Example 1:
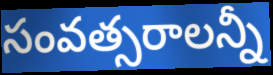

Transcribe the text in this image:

సంవత్సరాలన్నీ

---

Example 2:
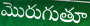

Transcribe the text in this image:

మొరుగుతూ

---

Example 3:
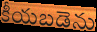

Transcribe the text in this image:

కీయబడెను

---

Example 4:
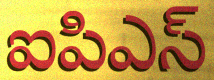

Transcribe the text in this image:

ఐపిఎస్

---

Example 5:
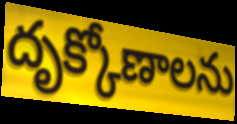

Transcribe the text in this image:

దృక్కోణాలను